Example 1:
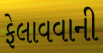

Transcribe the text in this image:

ફેલાવવાની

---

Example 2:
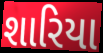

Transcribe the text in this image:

શારિયા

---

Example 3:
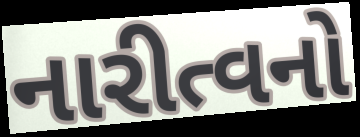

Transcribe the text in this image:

નારીત્વનો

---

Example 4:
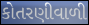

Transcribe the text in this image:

કોતરણીવાળી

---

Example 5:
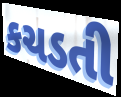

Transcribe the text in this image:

કચડતી